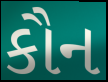
કૌન